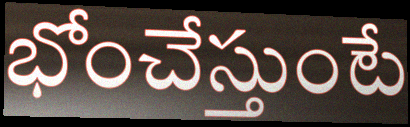
భోంచేస్తుంటే